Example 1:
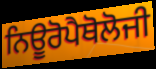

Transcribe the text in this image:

ਨਿਊਰੋਪੈਥੋਲੋਜੀ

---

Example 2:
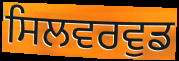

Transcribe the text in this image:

ਸਿਲਵਰਵੁਡ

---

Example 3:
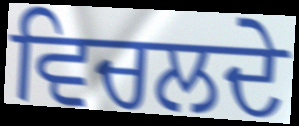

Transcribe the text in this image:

ਵਿਚਲਦੇ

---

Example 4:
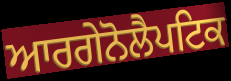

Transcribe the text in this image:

ਆਰਗੇਨੋਲੈਪਟਿਕ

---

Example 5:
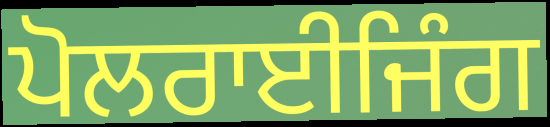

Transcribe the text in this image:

ਪੋਲਰਾਈਜਿੰਗ